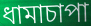
ধামাচাপা